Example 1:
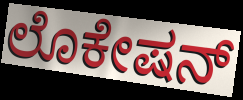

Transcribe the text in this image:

ಲೊಕೇಷನ್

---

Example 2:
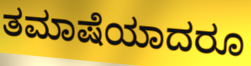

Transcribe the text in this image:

ತಮಾಷೆಯಾದರೂ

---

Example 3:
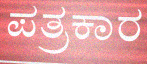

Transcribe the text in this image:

ಪತ್ರಕಾರ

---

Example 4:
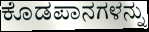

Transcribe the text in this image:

ಕೊಡಪಾನಗಳನ್ನು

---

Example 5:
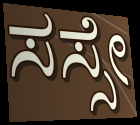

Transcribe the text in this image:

ಸಸ್ಸೇ